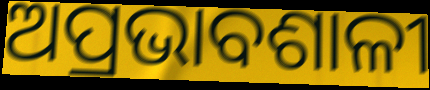
ଅପ୍ରଭାବଶାଳୀ